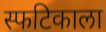
स्फटिकाला